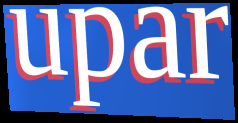
upar